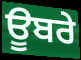
ਊਬਰੇ